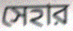
সেহার